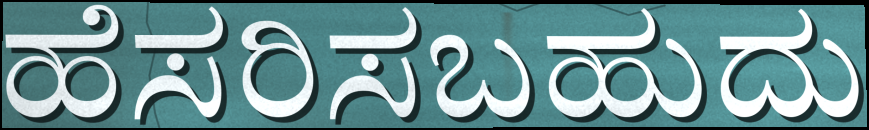
ಹೆಸರಿಸಬಹುದು